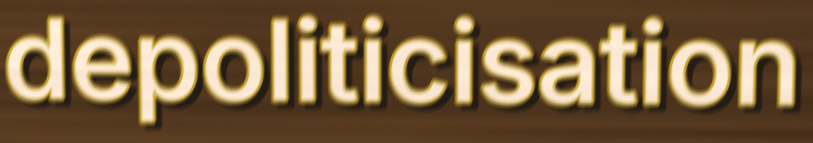
depoliticisation